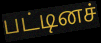
பட்டினச்